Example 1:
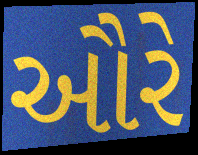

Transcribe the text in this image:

ઔરે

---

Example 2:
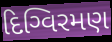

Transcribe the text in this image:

દિગ્વિરમણ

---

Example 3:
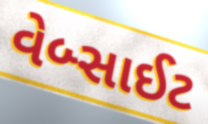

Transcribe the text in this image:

વેબ્સાઈટ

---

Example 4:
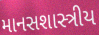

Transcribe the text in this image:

માનસશાસ્ત્રીય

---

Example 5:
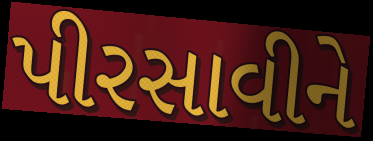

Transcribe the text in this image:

પીરસાવીને